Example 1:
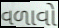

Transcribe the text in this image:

વળાવો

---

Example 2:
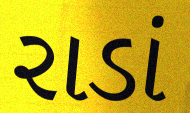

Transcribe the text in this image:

રાડાં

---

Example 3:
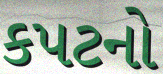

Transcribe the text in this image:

કપટનો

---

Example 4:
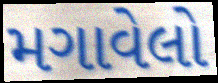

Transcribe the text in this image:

મગાવેલો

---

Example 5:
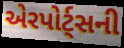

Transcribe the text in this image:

એરપોર્ટ્સની